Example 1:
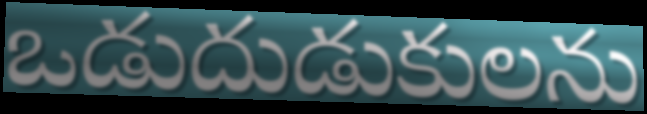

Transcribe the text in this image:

ఒడుదుడుకులను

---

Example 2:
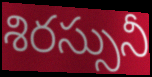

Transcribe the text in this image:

శిరస్సునీ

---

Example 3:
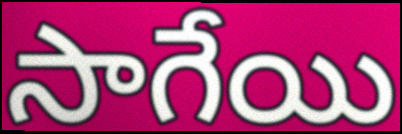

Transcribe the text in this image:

సాగేయి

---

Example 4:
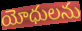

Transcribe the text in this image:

యోధులను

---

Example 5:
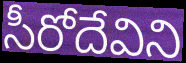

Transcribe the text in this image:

సీరోదేవిని